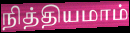
நித்தியமாம்